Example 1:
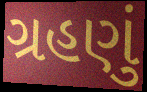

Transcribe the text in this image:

ગ્રહણું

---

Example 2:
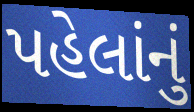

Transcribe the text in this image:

પહેલાંનું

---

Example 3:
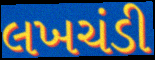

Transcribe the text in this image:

લખચંડી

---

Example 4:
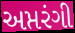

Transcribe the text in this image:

અપ્તરંગી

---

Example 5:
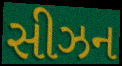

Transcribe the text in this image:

સીઝન